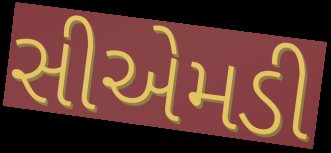
સીએમડી